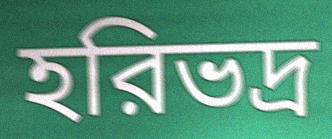
হরিভদ্র